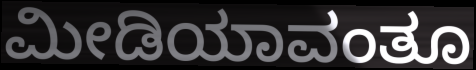
ಮೀಡಿಯಾವಂತೂ